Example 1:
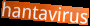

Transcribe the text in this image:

hantavirus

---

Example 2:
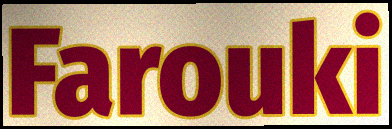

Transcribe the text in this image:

Farouki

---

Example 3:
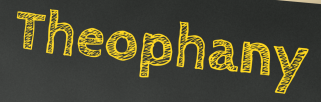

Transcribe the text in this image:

Theophany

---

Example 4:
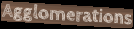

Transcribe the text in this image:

Agglomerations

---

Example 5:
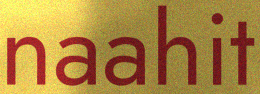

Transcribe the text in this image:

naahit